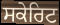
ਸਕੇਰਿਟ